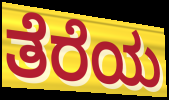
ತೆರೆಯ